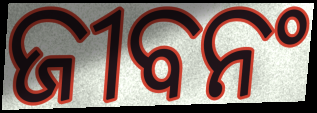
ଜୀବନଂ